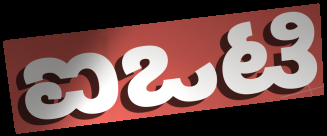
ಐಒಟಿ